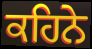
ਕਹਿਨੇ